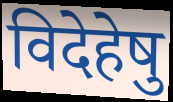
विदेहेषु